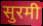
सुरमी